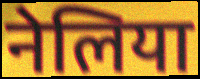
नेलिया